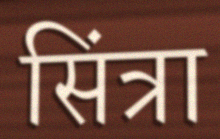
सिंत्रा